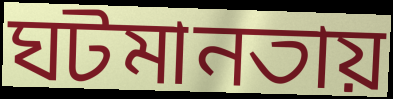
ঘটমানতায়